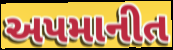
અપમાનીત